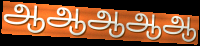
ஆஆஆஆஆ